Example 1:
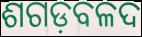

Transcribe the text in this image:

ଶଗଡ଼ବଳଦ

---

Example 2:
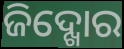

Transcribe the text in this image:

ଜିଦ୍ଖୋର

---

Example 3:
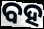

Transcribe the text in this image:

ବହ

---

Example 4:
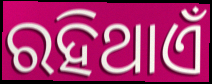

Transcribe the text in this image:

ରହିଥାଏଁ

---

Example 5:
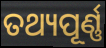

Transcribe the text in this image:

ତଥ୍ୟପୂର୍ଣ୍ଣ